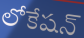
లోకేషన్